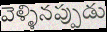
వెళ్ళినప్పుడు